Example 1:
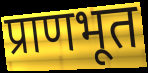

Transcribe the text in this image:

प्राणभूत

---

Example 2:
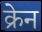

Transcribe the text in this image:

क्रेन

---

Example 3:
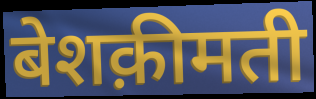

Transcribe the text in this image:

बेशक़ीमती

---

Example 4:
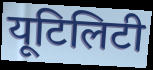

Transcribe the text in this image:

यूटिलिटी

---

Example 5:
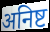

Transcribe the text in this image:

अनिष्ट